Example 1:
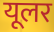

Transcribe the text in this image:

यूलर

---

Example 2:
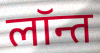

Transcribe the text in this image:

लॉन्त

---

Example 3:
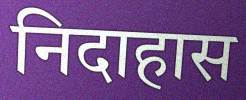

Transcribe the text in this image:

निदाहास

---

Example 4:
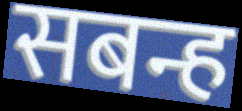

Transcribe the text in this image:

सबन्ह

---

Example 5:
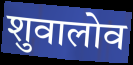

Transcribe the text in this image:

शुवालोव